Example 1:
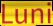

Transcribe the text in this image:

Luni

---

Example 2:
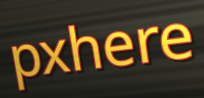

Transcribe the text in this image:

pxhere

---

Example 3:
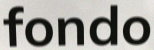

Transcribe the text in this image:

fondo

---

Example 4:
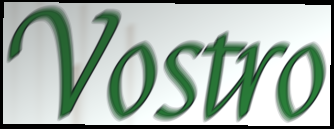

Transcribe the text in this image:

Vostro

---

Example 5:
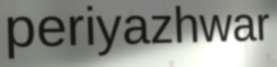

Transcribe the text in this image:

periyazhwar